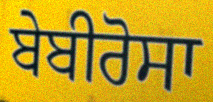
ਬੇਬੀਰੋਸਾ